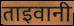
ताइवानी